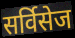
सर्विसेज